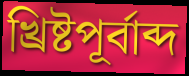
খ্রিষ্টপূর্বাব্দ